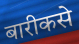
बारीकसे